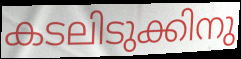
കടലിടുക്കിനു